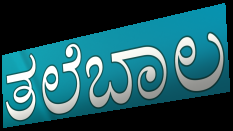
ತಲೆಬಾಲ